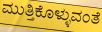
ಮುತ್ತಿಕೊಳ್ಳುವಂತೆ